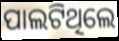
ପାଲଟିଥିଲେ